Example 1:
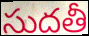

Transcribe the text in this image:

సుదతీ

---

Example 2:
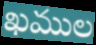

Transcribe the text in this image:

ఖముల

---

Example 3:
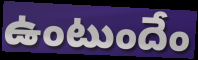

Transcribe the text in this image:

ఉంటుందేం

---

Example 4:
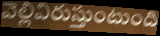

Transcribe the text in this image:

వెల్లివిరుస్తుంటుంది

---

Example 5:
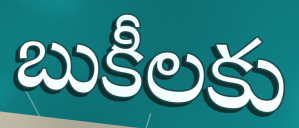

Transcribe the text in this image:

బుకీలకు